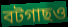
বটগাছও